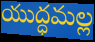
యుద్ధమల్ల